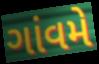
ગાંવમે